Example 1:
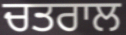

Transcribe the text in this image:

ਚਤਰਾਲ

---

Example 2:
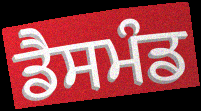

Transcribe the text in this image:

ਡੈਸਮੰਡ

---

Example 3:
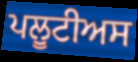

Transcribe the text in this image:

ਪਲੂਟੀਅਸ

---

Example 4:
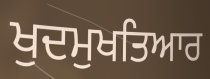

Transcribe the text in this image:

ਖੁਦਮੁਖਤਿਆਰ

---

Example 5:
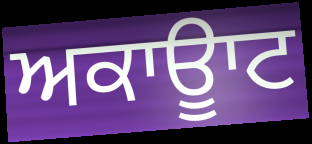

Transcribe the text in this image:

ਅਕਾਊਾਟ